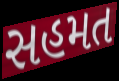
સહમત